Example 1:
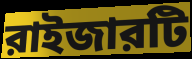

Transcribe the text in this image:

রাইজারটি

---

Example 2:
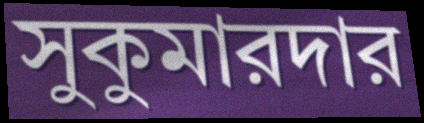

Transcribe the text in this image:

সুকুমারদার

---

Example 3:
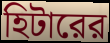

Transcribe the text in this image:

হিটারের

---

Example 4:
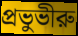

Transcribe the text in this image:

প্রভুভীরু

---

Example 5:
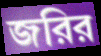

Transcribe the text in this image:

জরির